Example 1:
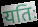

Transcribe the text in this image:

यतिः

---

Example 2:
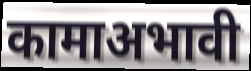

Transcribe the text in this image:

कामाअभावी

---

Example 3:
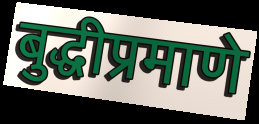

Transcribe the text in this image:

बुद्धीप्रमाणे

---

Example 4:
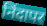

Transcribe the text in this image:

निंदापर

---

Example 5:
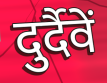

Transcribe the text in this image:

दुर्दैवें